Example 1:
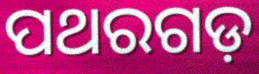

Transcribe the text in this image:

ପଥରଗଡ଼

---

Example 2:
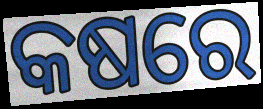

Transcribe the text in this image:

କଷରେ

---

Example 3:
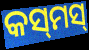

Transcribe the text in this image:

କସ୍‌ମସ୍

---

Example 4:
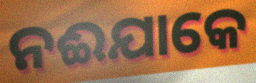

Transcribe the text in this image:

ନଈଯାକେ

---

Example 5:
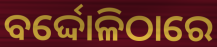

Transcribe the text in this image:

ବର୍ଦ୍ଦୋଳିଠାରେ